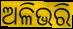
ଅଳିଭରି